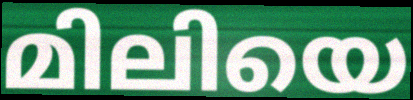
മിലിയെ